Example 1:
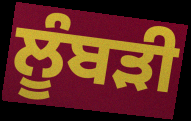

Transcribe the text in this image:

ਲੂੰਬੜੀ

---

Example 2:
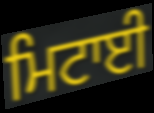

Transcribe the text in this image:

ਮਿਟਾਈ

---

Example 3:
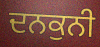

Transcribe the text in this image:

ਦਨਕੁਨੀ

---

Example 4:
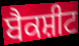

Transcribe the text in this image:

ਬੈਕਸ਼ੀਟ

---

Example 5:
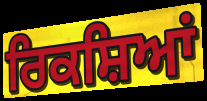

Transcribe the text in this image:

ਰਿਕਸ਼ਿਆਂ